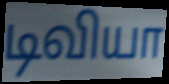
டிவியா